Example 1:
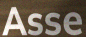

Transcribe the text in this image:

Asse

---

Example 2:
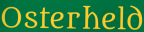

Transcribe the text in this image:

Osterheld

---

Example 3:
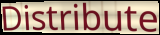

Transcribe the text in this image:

Distribute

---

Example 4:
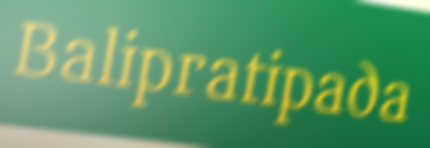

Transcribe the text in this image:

Balipratipada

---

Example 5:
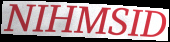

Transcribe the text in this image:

NIHMSID